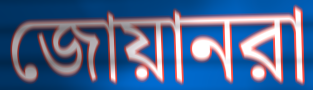
জোয়ানরা